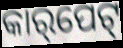
କାର୍‌ପେଟ୍